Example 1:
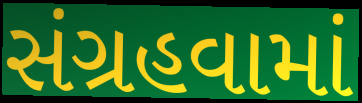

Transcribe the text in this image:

સંગ્રહવામાં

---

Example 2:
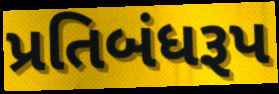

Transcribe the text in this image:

પ્રતિબંધરૂપ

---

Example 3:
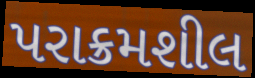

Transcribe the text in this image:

પરાક્રમશીલ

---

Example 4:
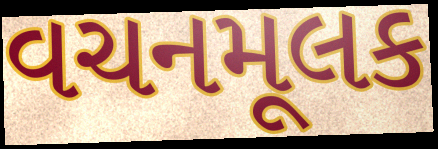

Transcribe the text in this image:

વચનમૂલક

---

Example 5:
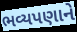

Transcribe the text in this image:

ભવ્યપણાને